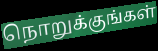
நொறுக்குங்கள்